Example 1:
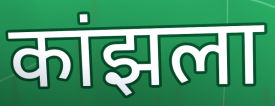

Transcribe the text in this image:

कांझला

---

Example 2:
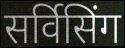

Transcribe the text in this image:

सर्विसिंग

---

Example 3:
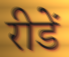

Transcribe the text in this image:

रीडें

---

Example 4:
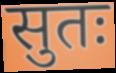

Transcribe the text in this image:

सुतः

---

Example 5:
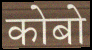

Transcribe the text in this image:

कोबो